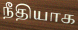
நீதியாக